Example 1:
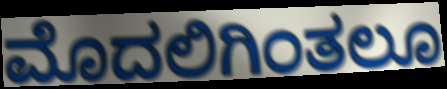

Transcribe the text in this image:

ಮೊದಲಿಗಿಂತಲೂ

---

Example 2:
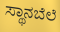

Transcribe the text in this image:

ಸ್ಥಾನಬೆಲೆ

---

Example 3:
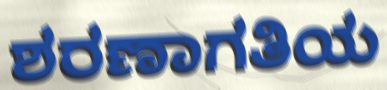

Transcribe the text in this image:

ಶರಣಾಗತಿಯ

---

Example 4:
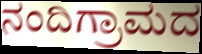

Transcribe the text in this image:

ನಂದಿಗ್ರಾಮದ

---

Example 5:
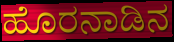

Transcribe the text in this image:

ಹೊರನಾಡಿನ